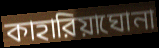
কাহারিয়াঘোনা